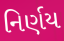
નિર્ણય